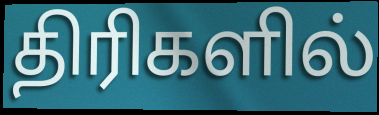
திரிகளில்